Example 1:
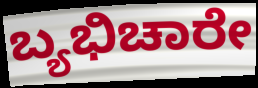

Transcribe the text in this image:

ಬ್ಯಭಿಚಾರೇ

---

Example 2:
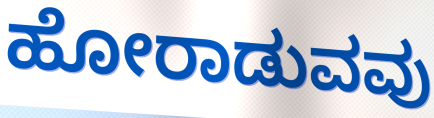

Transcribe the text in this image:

ಹೋರಾಡುವವು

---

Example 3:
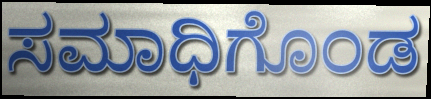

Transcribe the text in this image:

ಸಮಾಧಿಗೊಂಡ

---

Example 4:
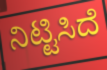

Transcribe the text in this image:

ನಿಟ್ಟಿಸಿದೆ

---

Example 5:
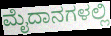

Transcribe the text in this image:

ಮೈದಾನಗಳಲ್ಲಿ